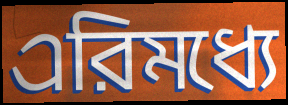
এরিমধ্যে